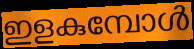
ഇളകുമ്പോൾ